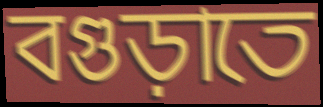
বগুড়াতে